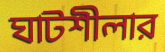
ঘাটশীলার